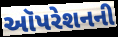
ઑપરેશનની